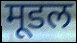
मूडल